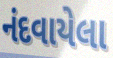
નંદવાયેલા